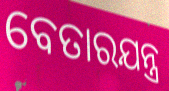
ବେତାରଯନ୍ତ୍ର